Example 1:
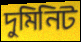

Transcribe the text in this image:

দুমিনিট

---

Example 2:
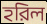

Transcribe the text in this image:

হরিল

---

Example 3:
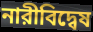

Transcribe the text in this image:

নারীবিদ্বেষ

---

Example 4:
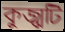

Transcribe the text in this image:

কুজ্ঝটি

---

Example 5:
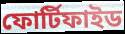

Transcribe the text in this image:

ফোর্টিফাইড